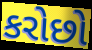
કરોછો